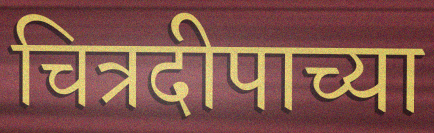
चित्रदीपाच्या